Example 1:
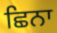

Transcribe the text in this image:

ਛਿਨਾ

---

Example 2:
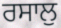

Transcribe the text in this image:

ਰਸਾਲੁ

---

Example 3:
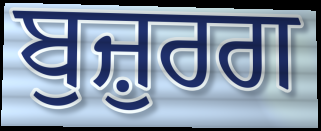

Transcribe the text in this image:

ਬੁਜ਼ੁਰਗ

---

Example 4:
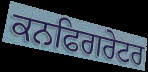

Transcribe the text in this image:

ਕਨਫਿਗਰੇਟਰ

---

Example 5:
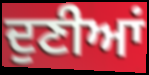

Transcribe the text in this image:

ਦੁਣੀਆਂ